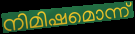
നിമിഷമൊന്ന്